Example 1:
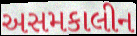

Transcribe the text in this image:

અસમકાલીન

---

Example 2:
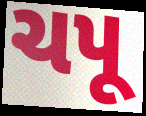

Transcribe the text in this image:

ચપૂ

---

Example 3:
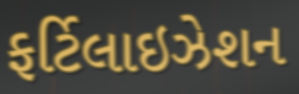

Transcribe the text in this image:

ફર્ટિલાઇઝેશન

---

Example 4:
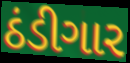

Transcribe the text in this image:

ઠંડીગાર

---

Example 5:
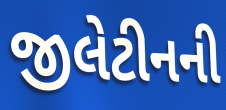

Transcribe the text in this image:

જીલેટીનની